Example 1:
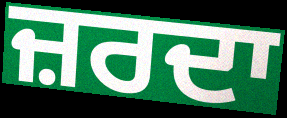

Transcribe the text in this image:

ਜ਼ਰਦਾ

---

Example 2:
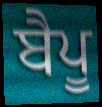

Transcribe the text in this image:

ਬੈਪੂ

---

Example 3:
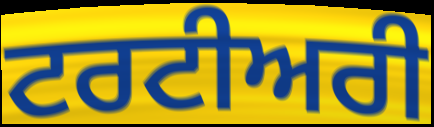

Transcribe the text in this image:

ਟਰਟੀਅਰੀ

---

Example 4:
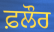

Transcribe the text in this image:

ਫ਼ਲੌਰ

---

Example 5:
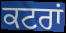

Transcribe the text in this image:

ਕਟਰਾਂ